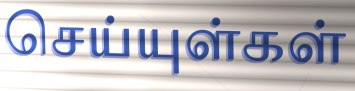
செய்யுள்கள்